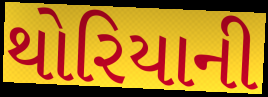
થોરિયાની